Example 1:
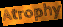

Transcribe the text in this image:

Atrophy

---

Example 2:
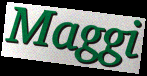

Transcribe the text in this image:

Maggi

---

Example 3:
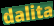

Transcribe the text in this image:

dalita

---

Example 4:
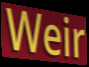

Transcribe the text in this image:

Weir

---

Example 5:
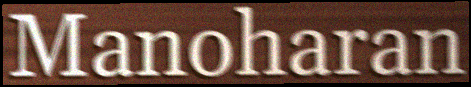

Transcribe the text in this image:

Manoharan